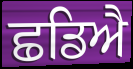
ਛਡਿਐ